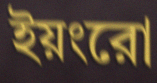
ইয়ংরো